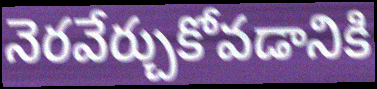
నెరవేర్చుకోవడానికి